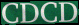
CDCD